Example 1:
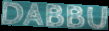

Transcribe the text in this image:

DABBU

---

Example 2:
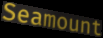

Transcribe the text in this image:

Seamount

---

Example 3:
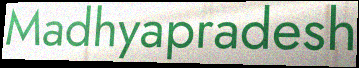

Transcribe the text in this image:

Madhyapradesh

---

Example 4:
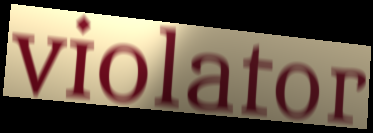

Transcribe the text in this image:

violator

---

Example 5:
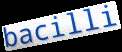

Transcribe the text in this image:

bacilli